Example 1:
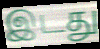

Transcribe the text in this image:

இடது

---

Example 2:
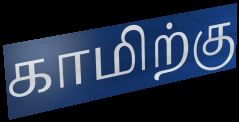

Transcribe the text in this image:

காமிற்கு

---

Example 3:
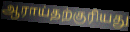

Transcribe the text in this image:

ஆராய்தற்குரியது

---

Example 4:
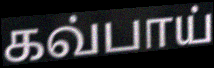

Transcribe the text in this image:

கவ்பாய்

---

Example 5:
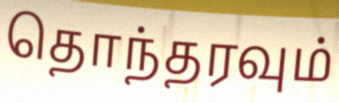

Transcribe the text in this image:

தொந்தரவும்